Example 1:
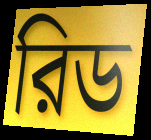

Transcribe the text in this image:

রিড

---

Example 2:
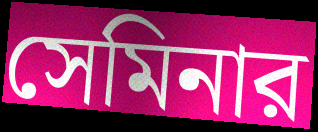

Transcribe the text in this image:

সেমিনার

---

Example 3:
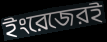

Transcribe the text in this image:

ইংরেজেরই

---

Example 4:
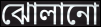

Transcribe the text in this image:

ঝোলানো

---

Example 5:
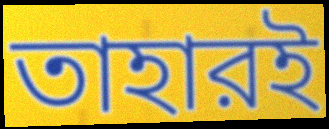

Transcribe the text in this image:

তাহারই